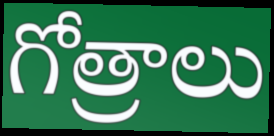
గోత్రాలు